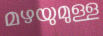
മഴയുമുള്ള